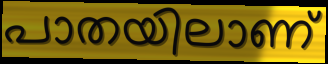
പാതയിലാണ്